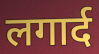
लगार्द